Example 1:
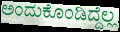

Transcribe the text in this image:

ಅಂದುಕೊಂಡಿದ್ದೆಲ್ಲ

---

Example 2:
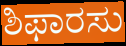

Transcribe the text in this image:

ಶಿಫಾರಸು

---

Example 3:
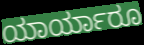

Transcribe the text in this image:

ಯಾರ್ಯಾರೂ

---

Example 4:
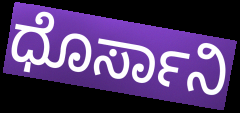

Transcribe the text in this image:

ಧೊರ್ಸಾನಿ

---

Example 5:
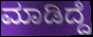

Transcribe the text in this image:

ಮಾಡಿದ್ದೆ